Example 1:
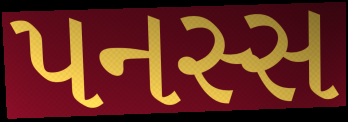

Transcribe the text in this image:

પનસ્સ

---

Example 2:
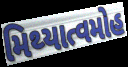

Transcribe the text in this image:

મિથ્યાત્વમોહ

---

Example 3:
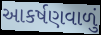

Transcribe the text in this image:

આકર્ષણવાળું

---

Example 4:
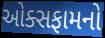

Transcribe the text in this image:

ઓક્સફામનો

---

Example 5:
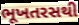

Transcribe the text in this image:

ભૂખતરસથી